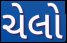
ચેલો